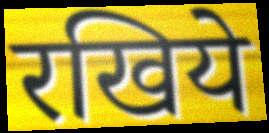
रखिये